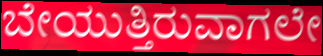
ಬೇಯುತ್ತಿರುವಾಗಲೇ